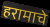
हरामाचे